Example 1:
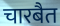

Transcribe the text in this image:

चारबैत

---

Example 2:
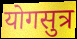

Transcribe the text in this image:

योगसुत्र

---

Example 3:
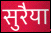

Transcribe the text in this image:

सुरैया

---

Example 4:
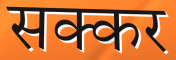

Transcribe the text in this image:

सक्कर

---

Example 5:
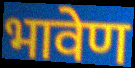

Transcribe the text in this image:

भावेण